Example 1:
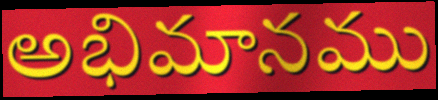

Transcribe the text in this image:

అభిమానము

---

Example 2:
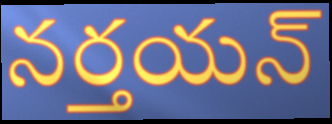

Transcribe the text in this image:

నర్తయన్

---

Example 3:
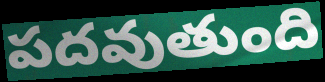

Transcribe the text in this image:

పదవుతుంది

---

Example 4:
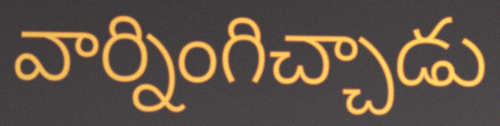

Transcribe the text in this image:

వార్నింగిచ్చాడు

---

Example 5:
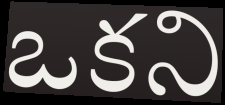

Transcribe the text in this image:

ఒకని